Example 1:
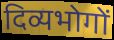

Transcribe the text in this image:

दिव्यभोगों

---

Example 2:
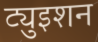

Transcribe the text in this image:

ट्युइशन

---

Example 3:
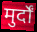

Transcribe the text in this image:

मुर्दों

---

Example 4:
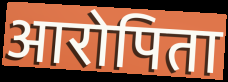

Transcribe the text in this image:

आरोपिता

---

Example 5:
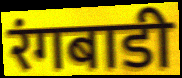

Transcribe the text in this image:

रंगबाडी